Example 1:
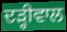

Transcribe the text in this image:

ਦੜ੍ਹੀਵਾਲ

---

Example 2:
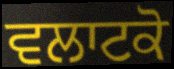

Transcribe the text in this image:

ਵਲਾਟਕੋ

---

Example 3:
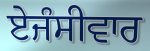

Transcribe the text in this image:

ਏਜੰਸੀਵਾਰ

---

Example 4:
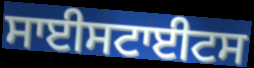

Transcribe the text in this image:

ਸਾਈਸਟਾਈਟਸ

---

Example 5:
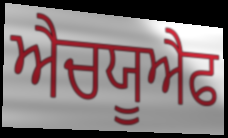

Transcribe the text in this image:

ਐਚਯੂਐਫ